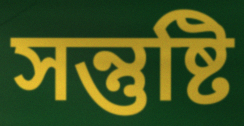
সন্তুষ্টি